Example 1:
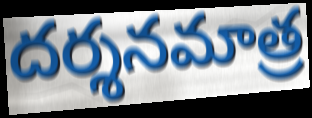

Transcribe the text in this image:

దర్శనమాత్ర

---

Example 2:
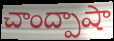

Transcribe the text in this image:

చాంద్పాషా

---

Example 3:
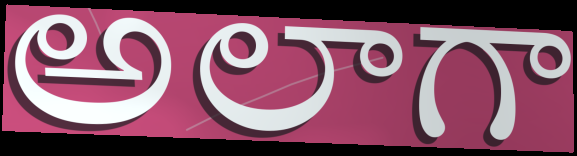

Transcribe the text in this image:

అలాగా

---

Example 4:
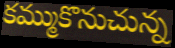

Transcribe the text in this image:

కమ్ముకొనుచున్న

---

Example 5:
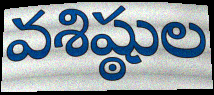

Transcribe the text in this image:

వశిష్ఠుల